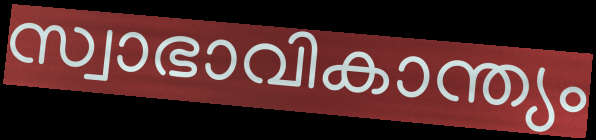
സ്വാഭാവികാന്ത്യം